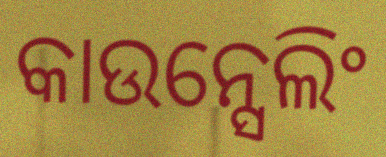
କାଉନ୍ସେଲିଂ